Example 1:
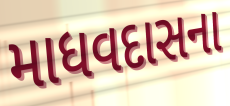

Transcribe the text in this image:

માધવદાસના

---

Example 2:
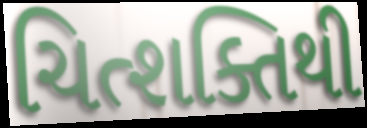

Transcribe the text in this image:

ચિત્શક્તિથી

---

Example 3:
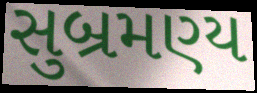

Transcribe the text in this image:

સુબ્રમણ્ય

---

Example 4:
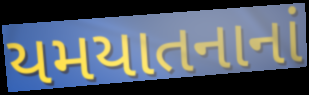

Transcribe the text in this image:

યમયાતનાનાં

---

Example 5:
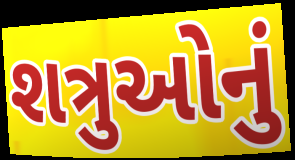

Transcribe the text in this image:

શત્રુઓનું